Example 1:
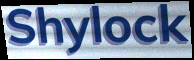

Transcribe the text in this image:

Shylock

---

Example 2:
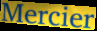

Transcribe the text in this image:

Mercier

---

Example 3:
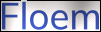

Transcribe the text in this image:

Floem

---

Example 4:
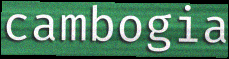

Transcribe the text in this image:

cambogia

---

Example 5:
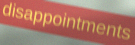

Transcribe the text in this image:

disappointments